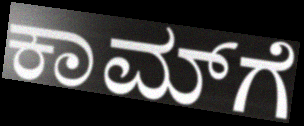
ಕಾಮ್‌ಗೆ